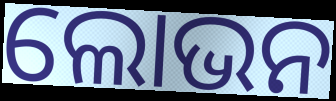
ଲୋଭନ